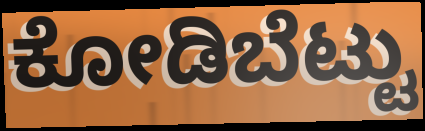
ಕೋಡಿಬೆಟ್ಟು